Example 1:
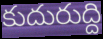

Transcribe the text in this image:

కుదురుద్ది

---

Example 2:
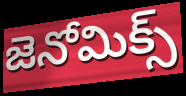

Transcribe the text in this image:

జెనోమిక్స్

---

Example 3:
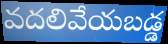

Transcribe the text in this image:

వదలివేయబడ్డ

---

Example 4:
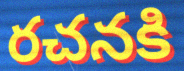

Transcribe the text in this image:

రచనకి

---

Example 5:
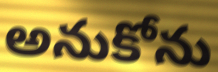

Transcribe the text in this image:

అనుకోను